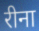
रीना